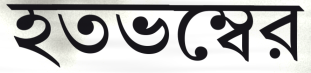
হতভম্বের